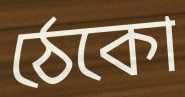
ঠেকো